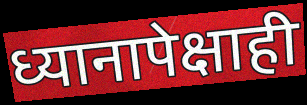
ध्यानापेक्षाही